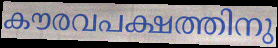
കൗരവപക്ഷത്തിനു